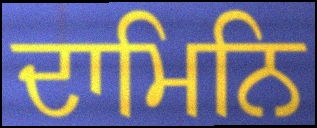
ਦਾਮਿਨਿ